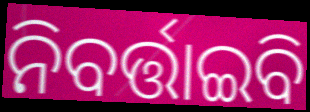
ନିବର୍ତ୍ତାଇବି